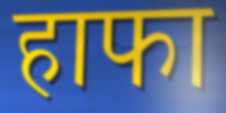
हाफा